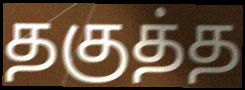
தகுத்த